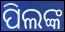
ପିଲଙ୍କ